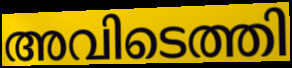
അവിടെത്തി